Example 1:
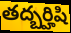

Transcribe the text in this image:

తద్బర్హిషి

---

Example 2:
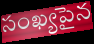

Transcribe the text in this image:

సంఖ్యపైన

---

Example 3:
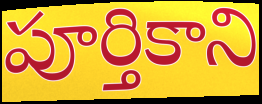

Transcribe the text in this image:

పూర్తికాని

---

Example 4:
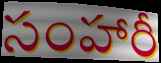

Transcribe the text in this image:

సంహారీ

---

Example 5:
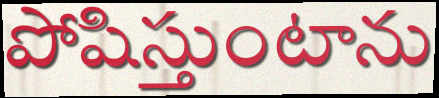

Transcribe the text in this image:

పోషిస్తుంటాను